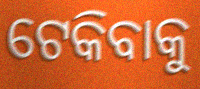
ଟେକିବାକୁ